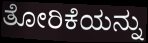
ತೋರಿಕೆಯನ್ನು